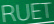
RUET